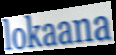
lokaana